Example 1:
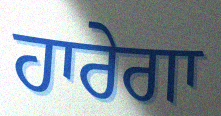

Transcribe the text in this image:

ਹਾਰੇਗਾ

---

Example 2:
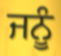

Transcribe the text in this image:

ਜਨੂੰ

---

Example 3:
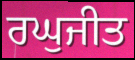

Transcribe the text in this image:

ਰਘੁਜੀਤ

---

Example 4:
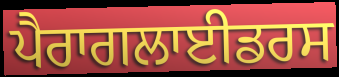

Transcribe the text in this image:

ਪੈਰਾਗਲਾਈਡਰਸ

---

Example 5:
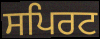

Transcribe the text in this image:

ਸਪਿਰਟ